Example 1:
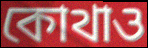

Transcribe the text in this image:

কোথাও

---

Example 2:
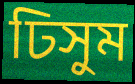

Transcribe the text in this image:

ঢিসুম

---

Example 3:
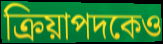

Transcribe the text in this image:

ক্রিয়াপদকেও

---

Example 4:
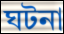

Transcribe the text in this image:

ঘটনা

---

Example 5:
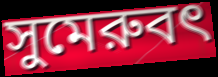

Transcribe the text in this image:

সুমেরুবৎ